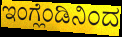
ಇಂಗ್ಲೆಂಡಿನಿಂದ